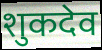
शुकदेव